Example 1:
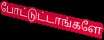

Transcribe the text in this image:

போட்டுட்டாங்களே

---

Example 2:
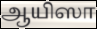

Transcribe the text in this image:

ஆயிஸா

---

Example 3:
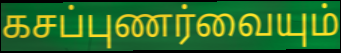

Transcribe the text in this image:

கசப்புணர்வையும்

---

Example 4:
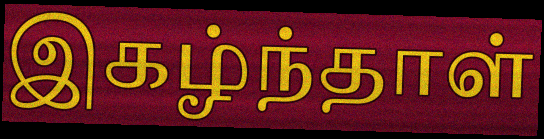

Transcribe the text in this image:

இகழ்ந்தாள்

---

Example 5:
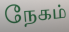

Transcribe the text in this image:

நேகம்